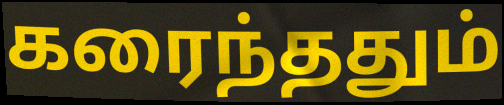
கரைந்ததும்